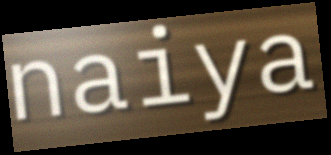
naiya